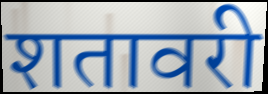
शतावरी